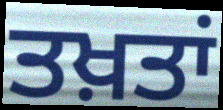
ਤਖ਼ਤਾਂ